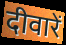
दीवारें